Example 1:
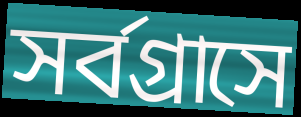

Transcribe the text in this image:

সর্বগ্রাসে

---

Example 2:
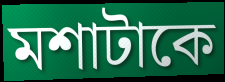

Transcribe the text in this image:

মশাটাকে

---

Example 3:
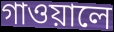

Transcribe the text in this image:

গাওয়ালে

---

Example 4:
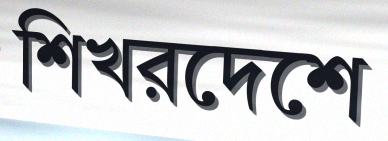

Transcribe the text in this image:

শিখরদেশে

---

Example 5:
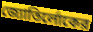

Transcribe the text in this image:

জ্যোতির্লোকের